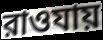
রাওযায়